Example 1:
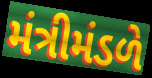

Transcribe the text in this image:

મંત્રીમંડળે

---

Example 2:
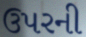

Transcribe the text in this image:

ઉપરની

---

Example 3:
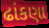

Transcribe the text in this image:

ઢાંકણા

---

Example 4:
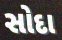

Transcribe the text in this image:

સોદા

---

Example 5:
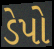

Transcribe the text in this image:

ડેપો